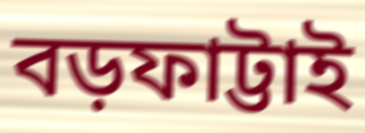
বড়ফাট্টাই